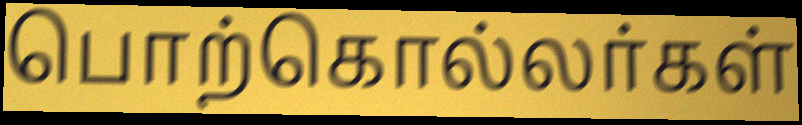
பொற்கொல்லர்கள்